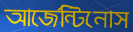
আর্জেন্টিনোস